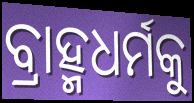
ବ୍ରାହ୍ମଧର୍ମକୁ